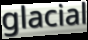
glacial